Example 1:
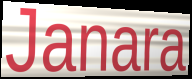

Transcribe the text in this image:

Janara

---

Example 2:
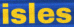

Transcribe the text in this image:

isles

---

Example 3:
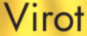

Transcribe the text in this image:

Virot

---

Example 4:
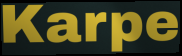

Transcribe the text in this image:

Karpe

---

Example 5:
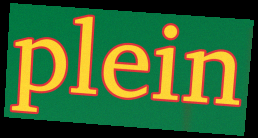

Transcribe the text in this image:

plein